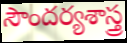
సౌందర్యశాస్త్ర